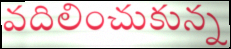
వదిలించుకున్న